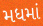
મધમાં